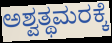
ಅಶ್ವತ್ಥಮರಕ್ಕೆ